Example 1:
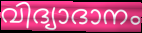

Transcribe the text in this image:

വിദ്യാദാനം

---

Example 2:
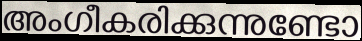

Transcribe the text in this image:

അംഗീകരിക്കുന്നുണ്ടോ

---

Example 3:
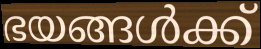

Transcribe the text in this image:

ഭയങ്ങൾക്ക്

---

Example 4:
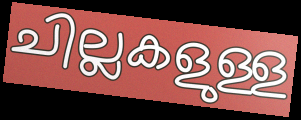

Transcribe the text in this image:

ചില്ലകളുള്ള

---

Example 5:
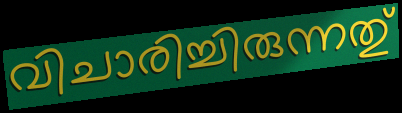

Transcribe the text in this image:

വിചാരിച്ചിരുന്നതു്